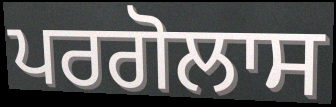
ਪਰਗੋਲਾਸ